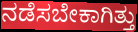
ನಡೆಸಬೇಕಾಗಿತ್ತು